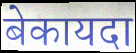
बेकायदा